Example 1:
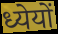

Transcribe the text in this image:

ध्येयों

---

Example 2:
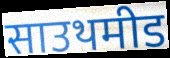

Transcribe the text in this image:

साउथमीड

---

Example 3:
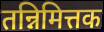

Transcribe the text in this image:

तन्निमित्तक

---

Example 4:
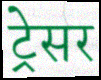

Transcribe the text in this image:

ट्रेसर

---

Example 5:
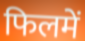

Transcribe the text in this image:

फिलमें